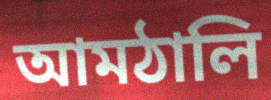
আমঠালি